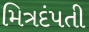
મિત્રદંપતી